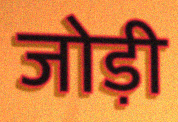
जोड़ी